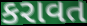
કરાવત